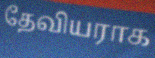
தேவியராக